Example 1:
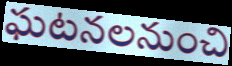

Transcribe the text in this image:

ఘటనలనుంచి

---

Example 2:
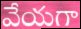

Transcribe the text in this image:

వేయగా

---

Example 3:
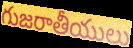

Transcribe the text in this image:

గుజరాతీయులు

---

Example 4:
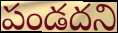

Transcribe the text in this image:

పండదని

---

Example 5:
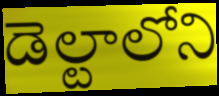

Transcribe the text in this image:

డెల్టాలోని